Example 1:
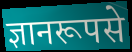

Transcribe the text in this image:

ज्ञानरूपसे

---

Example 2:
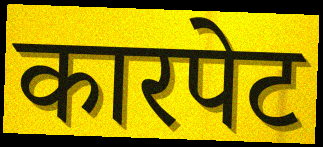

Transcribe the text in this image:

कारपेट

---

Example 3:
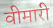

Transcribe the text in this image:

वीमारी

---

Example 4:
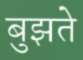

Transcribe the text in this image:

बुझते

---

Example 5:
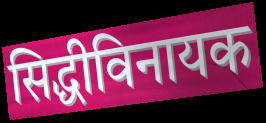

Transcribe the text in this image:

सिद्धीविनायक